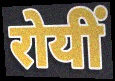
रोयीं